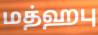
மத்ஹபு